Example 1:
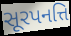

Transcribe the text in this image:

સૂરપનત્તિ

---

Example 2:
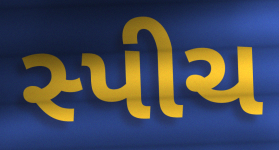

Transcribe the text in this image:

સ્પીચ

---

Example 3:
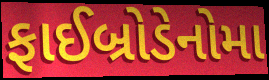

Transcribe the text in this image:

ફાઈબ્રોડેનોમા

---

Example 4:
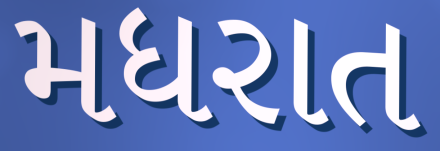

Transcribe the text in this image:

મધરાત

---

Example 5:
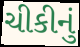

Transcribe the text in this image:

ચીકીનું